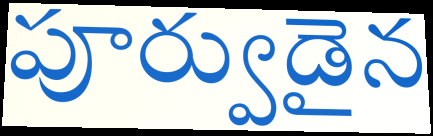
పూర్వుడైన